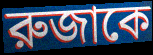
রুজাকে